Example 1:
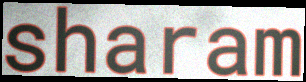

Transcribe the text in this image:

sharam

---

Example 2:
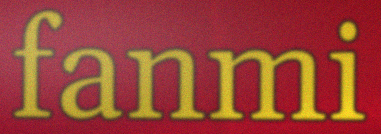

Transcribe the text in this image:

fanmi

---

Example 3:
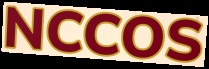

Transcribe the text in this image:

NCCOS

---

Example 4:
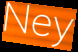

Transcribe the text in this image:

Ney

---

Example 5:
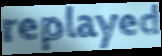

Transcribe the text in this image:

replayed